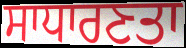
ਸਾਧਾਰਣਤਾ